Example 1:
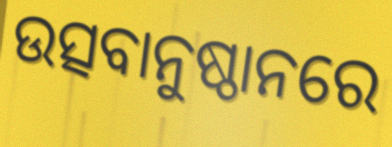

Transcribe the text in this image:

ଉତ୍ସବାନୁଷ୍ଠାନରେ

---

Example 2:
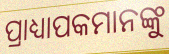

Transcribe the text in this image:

ପ୍ରାଧ୍ୟାପକମାନଙ୍କୁ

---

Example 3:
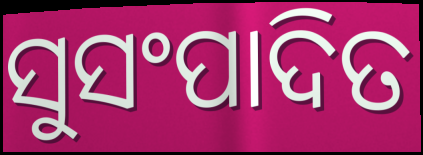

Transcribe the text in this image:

ସୁସଂପାଦିତ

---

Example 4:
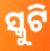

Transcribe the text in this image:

ସ୍କୁଟି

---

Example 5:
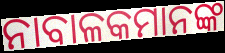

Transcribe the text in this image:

ନାବାଳକମାନଙ୍କ